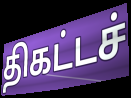
திகட்டச்